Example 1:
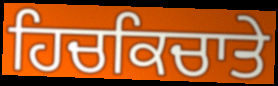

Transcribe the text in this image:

ਹਿਚਕਿਚਾਤੇ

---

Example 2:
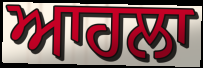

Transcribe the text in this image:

ਆਹਲਾ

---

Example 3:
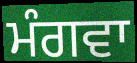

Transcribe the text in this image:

ਮੰਗਵਾ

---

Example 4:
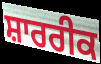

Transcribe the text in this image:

ਸ਼ਾਰਰੀਕ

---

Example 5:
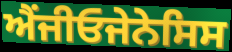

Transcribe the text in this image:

ਐਂਜੀਓਜੇਨੇਸਿਸ